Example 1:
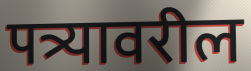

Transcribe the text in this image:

पत्र्यावरील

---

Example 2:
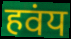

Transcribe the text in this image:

हवंय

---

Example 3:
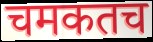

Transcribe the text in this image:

चमकतच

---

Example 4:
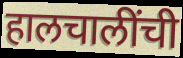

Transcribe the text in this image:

हालचालींची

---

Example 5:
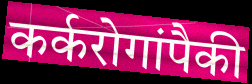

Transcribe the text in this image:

कर्करोगांपैकी